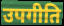
उपगीति